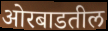
ओरबाडतील